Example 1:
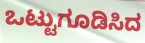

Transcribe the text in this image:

ಒಟ್ಟುಗೂಡಿಸಿದ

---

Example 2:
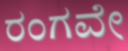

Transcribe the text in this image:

ರಂಗವೇ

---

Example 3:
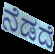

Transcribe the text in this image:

ನೆಡದೆ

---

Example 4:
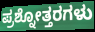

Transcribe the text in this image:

ಪ್ರಶ್ನೋತ್ತರಗಳು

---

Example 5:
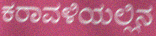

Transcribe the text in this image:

ಕರಾವಳಿಯಲ್ಲಿನ